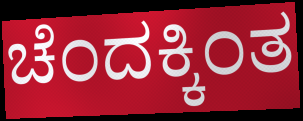
ಚೆಂದಕ್ಕಿಂತ